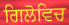
ਗਿਲੋਵਿਚ